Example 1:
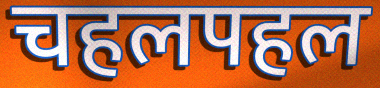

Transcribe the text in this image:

चहलपहल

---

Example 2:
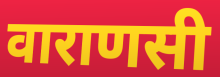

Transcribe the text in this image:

वाराणसी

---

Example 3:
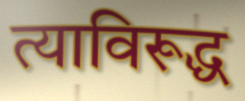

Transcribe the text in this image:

त्याविरूद्ध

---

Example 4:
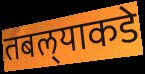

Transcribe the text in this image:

तबल्याकडे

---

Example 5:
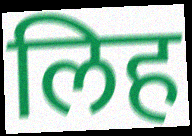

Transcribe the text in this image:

लिह